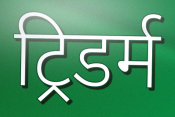
ट्रिडर्म